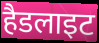
हैडलाइट